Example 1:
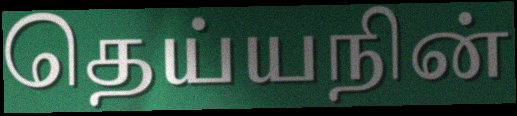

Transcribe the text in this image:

தெய்யநின்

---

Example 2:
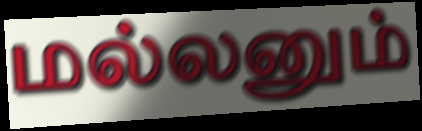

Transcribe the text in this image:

மல்லனும்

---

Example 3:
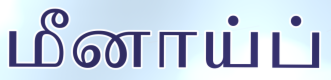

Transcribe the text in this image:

மீனாய்ப்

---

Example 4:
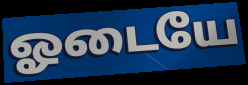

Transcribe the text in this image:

ஓடையே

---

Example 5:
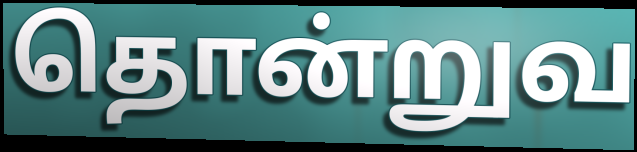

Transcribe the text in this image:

தொன்றுவ